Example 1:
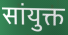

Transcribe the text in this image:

सांयुक्त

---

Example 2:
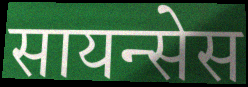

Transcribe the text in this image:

सायन्सेस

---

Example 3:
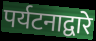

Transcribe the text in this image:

पर्यटनाद्वारे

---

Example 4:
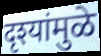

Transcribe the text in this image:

दृश्यांमुळे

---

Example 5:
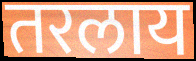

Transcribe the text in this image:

तरलाय